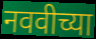
नववीच्या